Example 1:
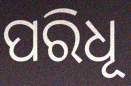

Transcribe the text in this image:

ପରିଧୂ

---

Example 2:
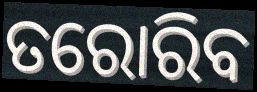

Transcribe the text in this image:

ତରୋରିବ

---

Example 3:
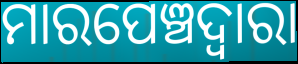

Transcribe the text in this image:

ମାରପେଞ୍ଚଦ୍ବାରା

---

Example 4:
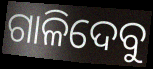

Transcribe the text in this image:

ଗାଳିଦେବୁ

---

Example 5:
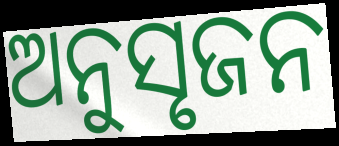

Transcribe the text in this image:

ଅନୁସୃଜନ